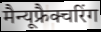
मैन्यूफ्रैक्चरिंग